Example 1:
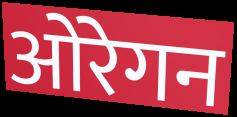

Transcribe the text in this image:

ओरेगन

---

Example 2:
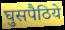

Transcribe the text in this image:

घुसपैठिये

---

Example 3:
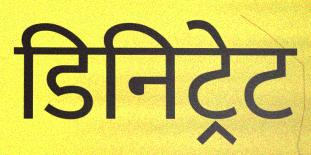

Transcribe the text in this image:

डिनिट्रेट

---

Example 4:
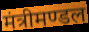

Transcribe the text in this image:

मंत्रीमण्डल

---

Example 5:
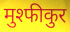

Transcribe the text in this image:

मुश्फीकुर